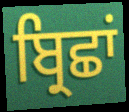
ਬ੍ਰਿਛਾਂ